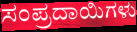
ಸಂಪ್ರದಾಯಿಗಳು